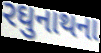
રઘુનાથના